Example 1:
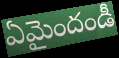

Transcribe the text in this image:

ఏమైందండీ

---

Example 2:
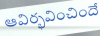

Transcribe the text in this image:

ఆవిర్భవించిందే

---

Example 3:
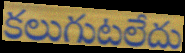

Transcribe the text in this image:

కలుగుటలేదు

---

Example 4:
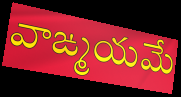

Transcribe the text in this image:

వాఙ్మయమే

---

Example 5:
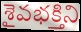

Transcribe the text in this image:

శైవభక్తిని